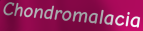
Chondromalacia